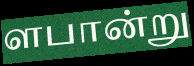
ளபான்று